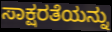
ಸಾಕ್ಷರತೆಯನ್ನು